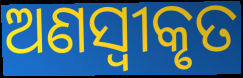
ଅଣସ୍ୱୀକୃତ